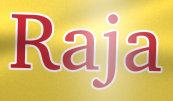
Raja